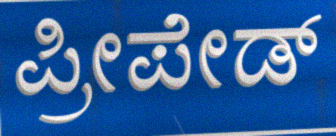
ಪ್ರೀಪೇಡ್